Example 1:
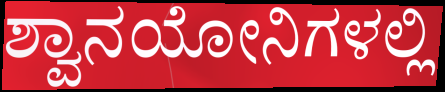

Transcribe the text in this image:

ಶ್ವಾನಯೋನಿಗಳಲ್ಲಿ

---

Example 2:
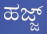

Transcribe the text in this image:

ಹಜ್ಜ್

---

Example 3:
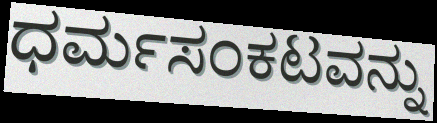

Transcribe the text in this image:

ಧರ್ಮಸಂಕಟವನ್ನು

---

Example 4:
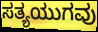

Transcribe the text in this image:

ಸತ್ಯಯುಗವು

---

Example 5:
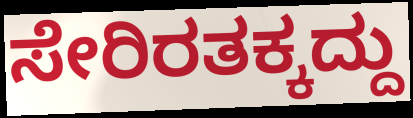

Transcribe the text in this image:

ಸೇರಿರತಕ್ಕದ್ದು